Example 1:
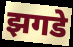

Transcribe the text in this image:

झगडे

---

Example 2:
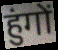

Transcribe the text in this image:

हुंगों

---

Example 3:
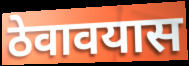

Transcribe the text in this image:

ठेवावयास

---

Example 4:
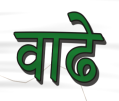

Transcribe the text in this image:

वाढे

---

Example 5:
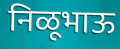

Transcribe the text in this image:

निळूभाऊ